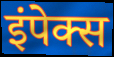
इंपेक्स